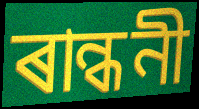
ৰান্ধনী